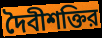
দৈবীশক্তির